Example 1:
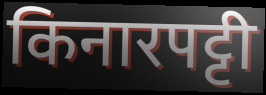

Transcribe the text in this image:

किनारपट्टी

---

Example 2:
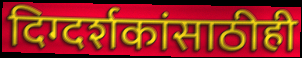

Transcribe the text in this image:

दिग्दर्शकांसाठीही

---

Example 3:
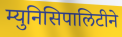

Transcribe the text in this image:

म्युनिसिपालिटीने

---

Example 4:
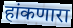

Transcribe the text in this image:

हांकणारा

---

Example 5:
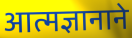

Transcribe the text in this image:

आत्मज्ञानाने